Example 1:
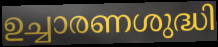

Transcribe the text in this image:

ഉച്ചാരണശുദ്ധി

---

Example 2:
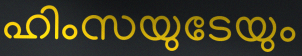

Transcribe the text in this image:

ഹിംസയുടേയും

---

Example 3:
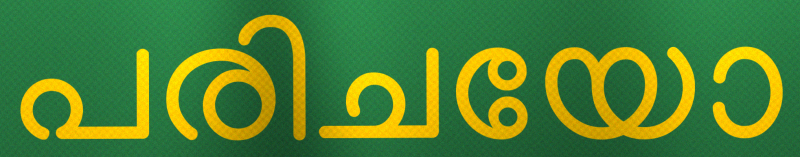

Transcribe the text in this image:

പരിചയോ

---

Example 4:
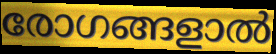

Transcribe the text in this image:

രോഗങ്ങളാൽ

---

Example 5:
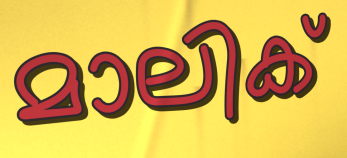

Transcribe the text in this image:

മാലിക്